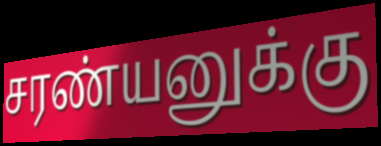
சரண்யனுக்கு